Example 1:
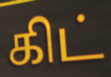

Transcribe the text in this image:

கிட்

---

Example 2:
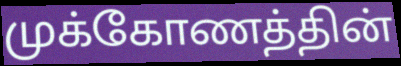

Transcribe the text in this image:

முக்கோணத்தின்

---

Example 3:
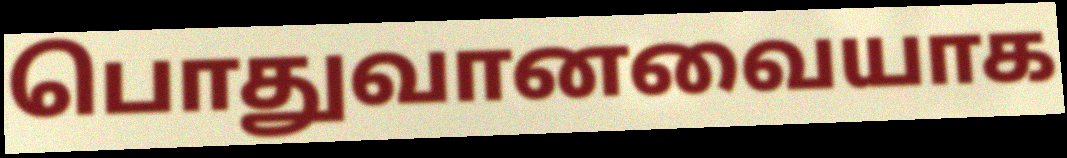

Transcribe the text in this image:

பொதுவானவையாக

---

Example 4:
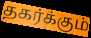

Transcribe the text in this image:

தகர்க்கும்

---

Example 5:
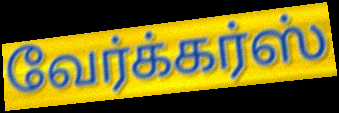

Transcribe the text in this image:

வேர்க்கர்ஸ்